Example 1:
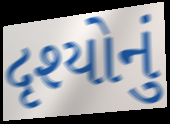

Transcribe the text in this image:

દૃશ્યોનું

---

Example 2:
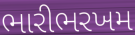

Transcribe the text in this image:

ભારીભરખમ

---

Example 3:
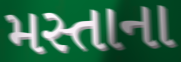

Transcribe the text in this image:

મસ્તાના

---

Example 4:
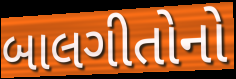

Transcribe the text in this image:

બાલગીતોનો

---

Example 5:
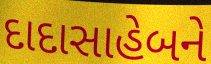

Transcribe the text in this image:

દાદાસાહેબને